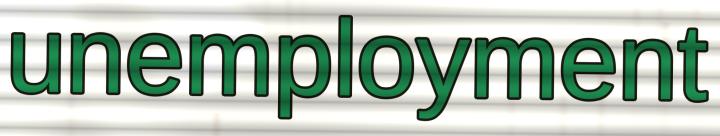
unemployment